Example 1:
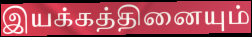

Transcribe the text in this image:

இயக்கத்தினையும்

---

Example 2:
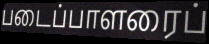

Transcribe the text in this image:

படைப்பாளரைப்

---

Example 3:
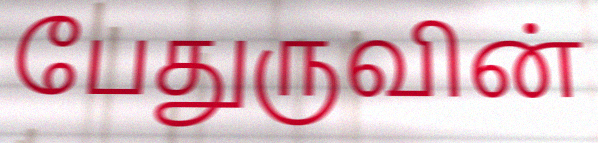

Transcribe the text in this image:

பேதுருவின்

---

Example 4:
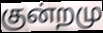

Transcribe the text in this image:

குன்றமு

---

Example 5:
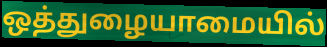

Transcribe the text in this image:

ஒத்துழையாமையில்